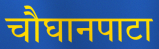
चौघानपाटा